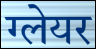
ग्लेयर